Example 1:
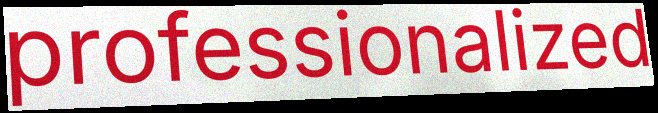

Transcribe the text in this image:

professionalized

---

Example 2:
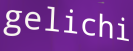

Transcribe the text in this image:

gelichi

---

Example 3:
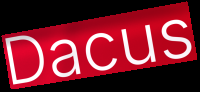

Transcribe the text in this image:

Dacus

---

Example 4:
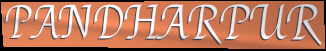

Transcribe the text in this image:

PANDHARPUR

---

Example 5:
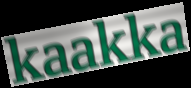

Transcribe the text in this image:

kaakka